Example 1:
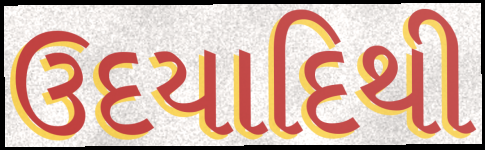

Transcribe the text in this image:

ઉદયાદિથી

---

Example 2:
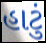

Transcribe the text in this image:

હાટું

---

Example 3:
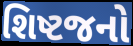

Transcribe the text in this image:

શિષ્ટજનો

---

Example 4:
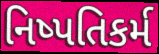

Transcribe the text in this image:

નિષ્પતિકર્મ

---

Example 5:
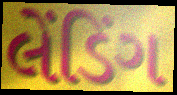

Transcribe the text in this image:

લેંડિંગ